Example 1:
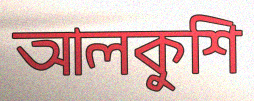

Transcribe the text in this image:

আলকুশি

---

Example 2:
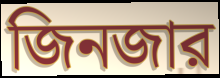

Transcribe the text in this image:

জিনজার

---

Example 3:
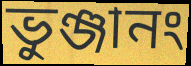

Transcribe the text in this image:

ভুঞ্জানং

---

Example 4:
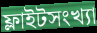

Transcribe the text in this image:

ফ্লাইটসংখ্যা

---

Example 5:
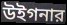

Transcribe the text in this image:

উইগনার